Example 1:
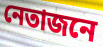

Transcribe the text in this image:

নেতাজনে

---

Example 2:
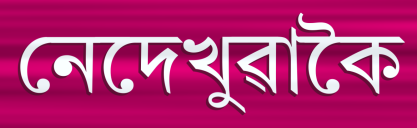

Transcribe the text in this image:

নেদেখুৱাকৈ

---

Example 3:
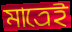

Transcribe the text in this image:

মাত্ৰেই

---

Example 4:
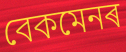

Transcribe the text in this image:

বেকমেনৰ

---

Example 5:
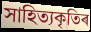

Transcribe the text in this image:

সাহিত্যকৃতিৰ